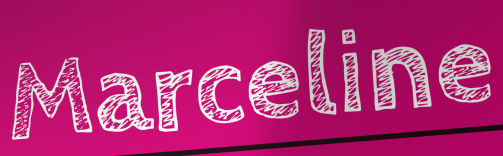
Marceline